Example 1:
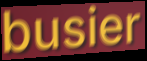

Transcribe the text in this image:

busier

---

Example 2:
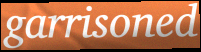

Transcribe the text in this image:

garrisoned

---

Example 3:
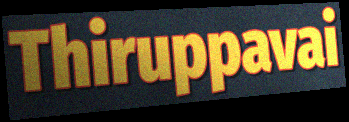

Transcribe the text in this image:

Thiruppavai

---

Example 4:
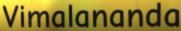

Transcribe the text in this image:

Vimalananda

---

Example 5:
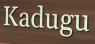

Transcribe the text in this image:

Kadugu